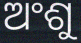
ଅଂଶୁ